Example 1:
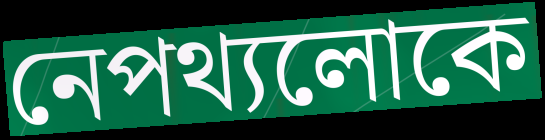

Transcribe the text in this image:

নেপথ্যলোকে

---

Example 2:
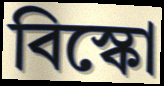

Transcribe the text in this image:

বিস্কো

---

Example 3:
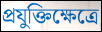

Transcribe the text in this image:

প্রযুক্তিক্ষেত্রে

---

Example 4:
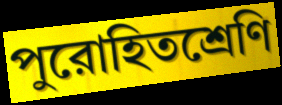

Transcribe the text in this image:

পুরোহিতশ্রেণি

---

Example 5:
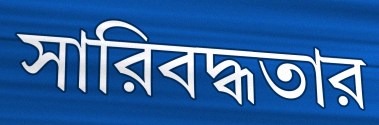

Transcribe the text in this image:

সারিবদ্ধতার